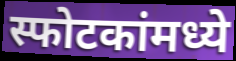
स्फोटकांमध्ये